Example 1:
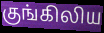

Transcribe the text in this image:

குங்கிலிய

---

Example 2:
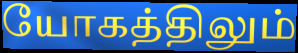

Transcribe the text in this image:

யோகத்திலும்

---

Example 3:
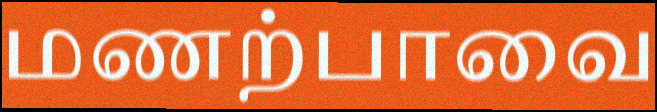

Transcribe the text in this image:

மணற்பாவை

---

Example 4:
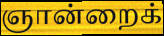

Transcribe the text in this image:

ஞான்றைக்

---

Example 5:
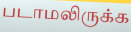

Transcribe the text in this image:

படாமலிருக்க